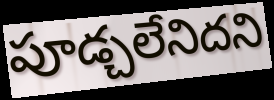
పూడ్చలేనిదని